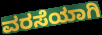
ವರಸೆಯಾಗಿ